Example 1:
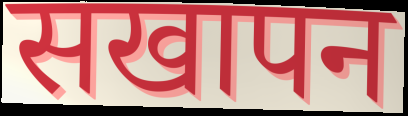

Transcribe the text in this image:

सखापन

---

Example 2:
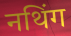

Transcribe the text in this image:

नथिंग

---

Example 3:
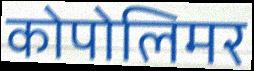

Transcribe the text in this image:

कोपोलिमर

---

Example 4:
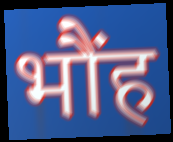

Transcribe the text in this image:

भौंह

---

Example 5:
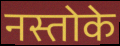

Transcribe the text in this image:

नस्तोके